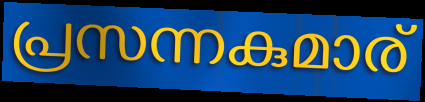
പ്രസന്നകുമാര്